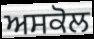
ਅਸਕੋਲ